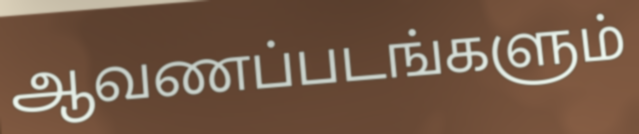
ஆவணப்படங்களும்